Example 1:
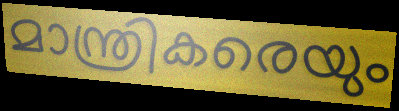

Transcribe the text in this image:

മാന്ത്രികരെയും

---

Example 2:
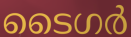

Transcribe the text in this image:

ടൈഗർ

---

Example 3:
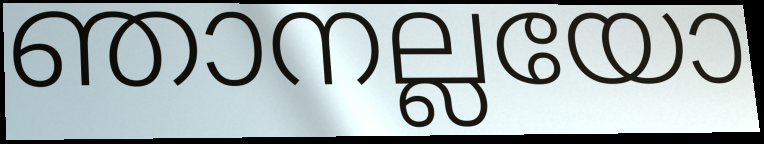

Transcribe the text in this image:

ഞാനല്ലയോ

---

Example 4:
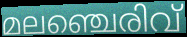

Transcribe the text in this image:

മലഞ്ചെരിവ്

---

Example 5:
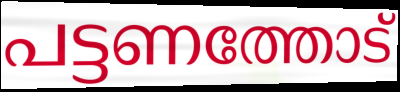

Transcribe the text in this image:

പട്ടണത്തോട്